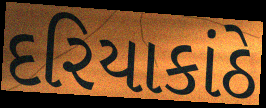
દરિયાકાંઠે